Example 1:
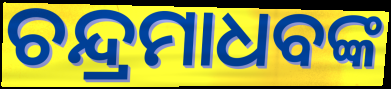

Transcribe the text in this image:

ଚନ୍ଦ୍ରମାଧବଙ୍କ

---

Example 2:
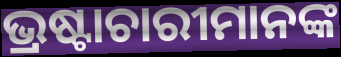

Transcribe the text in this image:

ଭ୍ରଷ୍ଟାଚାରୀମାନଙ୍କ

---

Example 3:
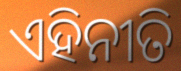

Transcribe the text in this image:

ଏହିନୀତି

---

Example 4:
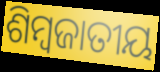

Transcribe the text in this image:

ଶିମ୍ବଜାତୀୟ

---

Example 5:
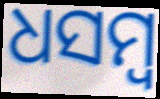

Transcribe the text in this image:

ଧସମ୍ବ